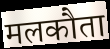
मलकौता